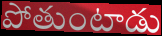
పోతుంటాడు